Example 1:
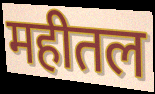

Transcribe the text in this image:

महीतल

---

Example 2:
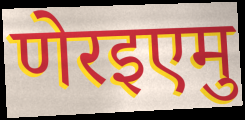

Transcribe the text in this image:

णेरइएमु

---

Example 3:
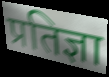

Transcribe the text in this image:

प्रतिज्ञा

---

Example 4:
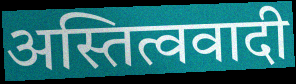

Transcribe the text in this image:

अस्तित्ववादी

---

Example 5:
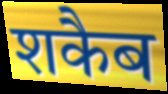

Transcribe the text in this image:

शकैब